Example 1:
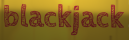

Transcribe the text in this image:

blackjack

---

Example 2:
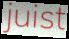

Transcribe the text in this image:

juist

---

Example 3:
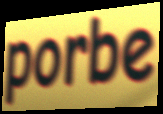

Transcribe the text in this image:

porbe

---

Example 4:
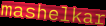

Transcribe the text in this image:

mashelkar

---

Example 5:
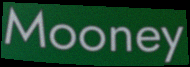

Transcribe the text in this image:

Mooney